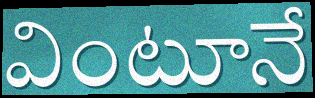
వింటూనే